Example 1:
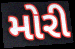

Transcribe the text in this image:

મોરી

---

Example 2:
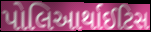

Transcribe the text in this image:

પોલિઆર્થાઈટિસ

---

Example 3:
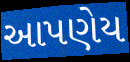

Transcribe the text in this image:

આપણેય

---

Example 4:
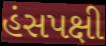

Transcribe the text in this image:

હંસપક્ષી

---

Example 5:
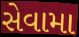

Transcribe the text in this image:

સેવામા